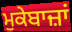
ਮੁਕੇਬਾਜ਼ਾਂ